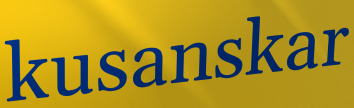
kusanskar